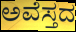
ಅವೆಸ್ತದ